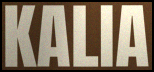
KALIA